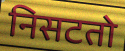
निसटतो